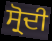
ਸ੍ਰੋਦੀ